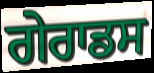
ਗੇਰਾਡਸ